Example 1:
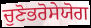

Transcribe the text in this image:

ਚੁਣੋਭਰੋਸੇਯੋਗ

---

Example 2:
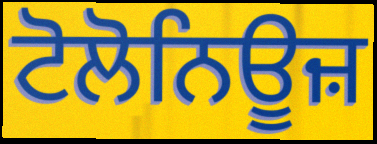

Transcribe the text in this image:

ਟੋਲੋਨਿਊਜ਼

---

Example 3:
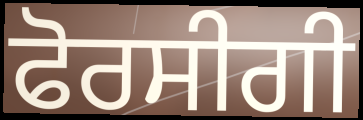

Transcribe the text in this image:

ਫੋਰਸੀਗੀ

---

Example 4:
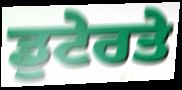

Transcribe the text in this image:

ਡੁਟੇਰਤੇ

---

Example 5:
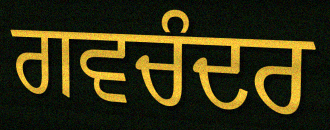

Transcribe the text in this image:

ਗਵਚੰਦਰ